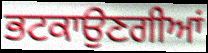
ਭਟਕਾਉਣਗੀਆਂ